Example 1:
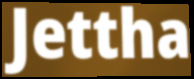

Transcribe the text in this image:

Jettha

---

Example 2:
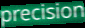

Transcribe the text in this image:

precision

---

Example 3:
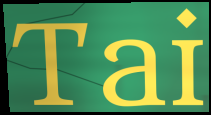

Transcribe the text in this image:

Tai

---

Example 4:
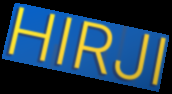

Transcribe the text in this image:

HIRJI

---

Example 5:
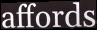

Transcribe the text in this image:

affords